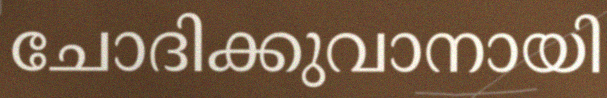
ചോദിക്കുവാനായി